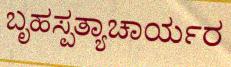
ಬೃಹಸ್ಪತ್ಯಾಚಾರ್ಯರ